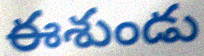
ఈశుండు